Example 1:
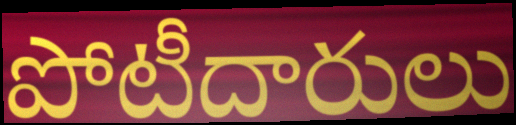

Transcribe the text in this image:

పోటీదారులు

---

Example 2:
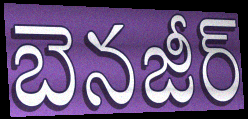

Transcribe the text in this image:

బెనజీర్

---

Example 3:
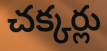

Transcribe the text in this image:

చక్కర్లు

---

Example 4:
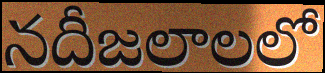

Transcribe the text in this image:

నదీజలాలలో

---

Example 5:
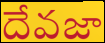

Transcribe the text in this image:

దేవజా